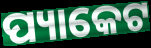
ପ୍ୟାକେଟ